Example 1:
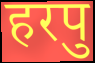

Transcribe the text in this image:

हरपु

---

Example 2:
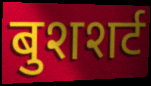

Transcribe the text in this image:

बुशशर्ट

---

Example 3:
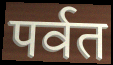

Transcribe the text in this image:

पर्वत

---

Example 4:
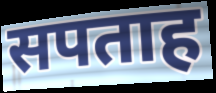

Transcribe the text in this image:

सपताह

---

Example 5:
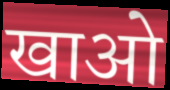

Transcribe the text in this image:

खाओ